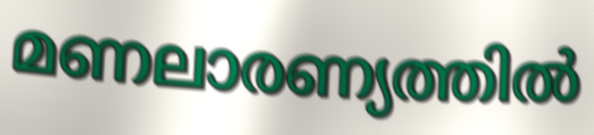
മണലാരണ്യത്തിൽ